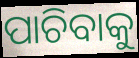
ପାଚିବାକୁ